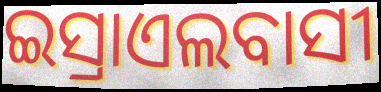
ଇସ୍ରାଏଲବାସୀ